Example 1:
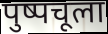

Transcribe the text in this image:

पुष्पचूला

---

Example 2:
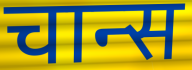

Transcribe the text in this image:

चान्स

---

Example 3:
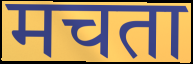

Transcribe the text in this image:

मचता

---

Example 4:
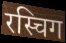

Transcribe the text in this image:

रस्चिग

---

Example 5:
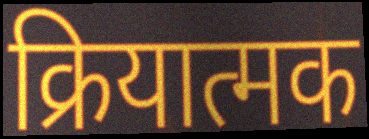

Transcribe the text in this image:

क्रियात्मक